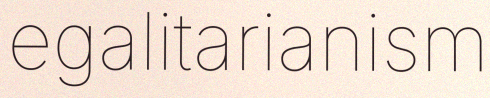
egalitarianism